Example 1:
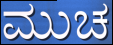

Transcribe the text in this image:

ಮುಚ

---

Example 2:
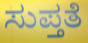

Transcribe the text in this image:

ಸುಪ್ತತೆ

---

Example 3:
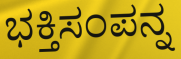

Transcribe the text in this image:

ಭಕ್ತಿಸಂಪನ್ನ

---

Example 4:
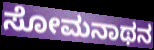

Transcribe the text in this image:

ಸೋಮನಾಥನ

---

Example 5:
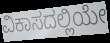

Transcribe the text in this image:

ವಿಕಾಸದಲ್ಲಿಯೇ